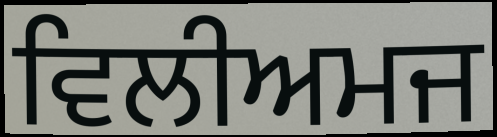
ਵਿਲੀਅਮਜ